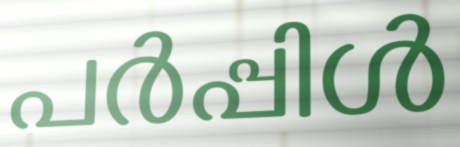
പർപ്പിൾ